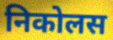
निकोलस